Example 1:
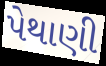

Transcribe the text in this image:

પેથાણી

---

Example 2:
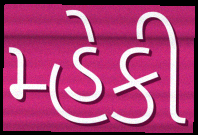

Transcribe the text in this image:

મ્હેકી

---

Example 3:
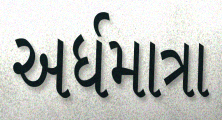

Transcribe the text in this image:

અર્ધમાત્રા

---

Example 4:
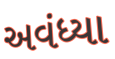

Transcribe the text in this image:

અવંધ્યા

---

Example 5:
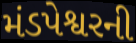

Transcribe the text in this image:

મંડપેશ્વરની